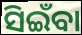
ସିଇଁବା